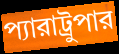
প্যারাট্রুপার